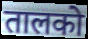
तालको